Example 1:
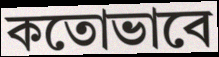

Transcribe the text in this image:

কতোভাবে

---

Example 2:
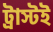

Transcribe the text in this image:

ট্রাস্টই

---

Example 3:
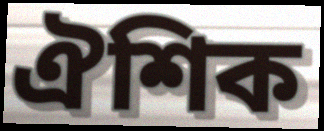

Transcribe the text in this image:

ঐশিক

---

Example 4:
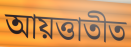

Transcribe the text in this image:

আয়ত্তাতীত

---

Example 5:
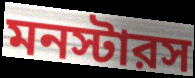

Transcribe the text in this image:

মনস্টারস